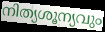
നിത്യശൂന്യവും